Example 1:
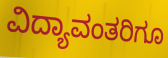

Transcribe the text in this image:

ವಿದ್ಯಾವಂತರಿಗೂ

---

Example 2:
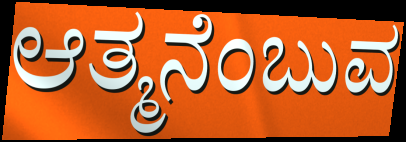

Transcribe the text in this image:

ಆತ್ಮನೆಂಬುವ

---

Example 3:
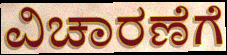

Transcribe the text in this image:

ವಿಚಾರಣೆಗೆ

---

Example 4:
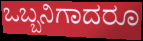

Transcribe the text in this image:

ಒಬ್ಬನಿಗಾದರೂ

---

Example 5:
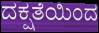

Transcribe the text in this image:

ದಕ್ಷತೆಯಿಂದ